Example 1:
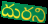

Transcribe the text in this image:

దురని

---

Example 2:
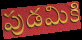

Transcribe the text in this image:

పుడమికి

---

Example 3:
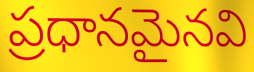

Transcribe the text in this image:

ప్రధానమైనవి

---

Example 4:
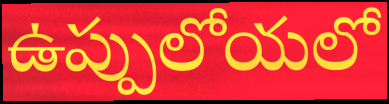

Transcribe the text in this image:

ఉప్పులోయలో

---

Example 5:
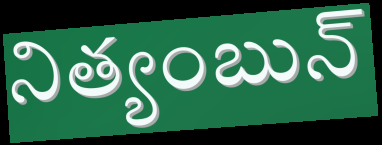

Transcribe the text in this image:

నిత్యంబున్